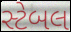
સ્ટેબલ